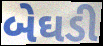
બેઘડી